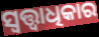
ସ୍ୱତ୍ତ୍ୱାଧିକାର